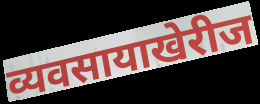
व्यवसायाखेरीज